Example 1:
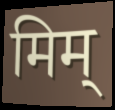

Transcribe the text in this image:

मिम्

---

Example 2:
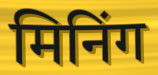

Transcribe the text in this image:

मिनिंग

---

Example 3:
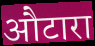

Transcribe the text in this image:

औटारा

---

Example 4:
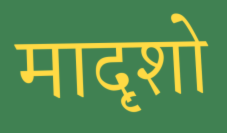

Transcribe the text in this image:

मादृशो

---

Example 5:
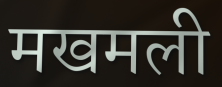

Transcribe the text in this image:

मखमली